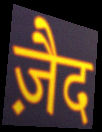
ज़ैद